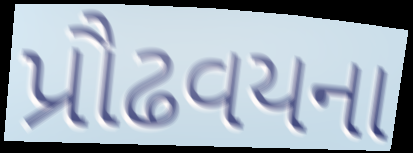
પ્રૌઢવયના